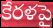
కేరళపై